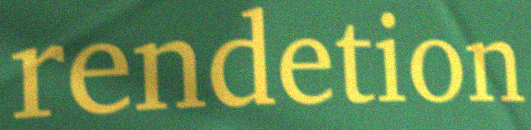
rendetion